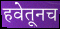
हवेतूनच